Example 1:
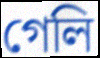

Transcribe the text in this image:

গেলি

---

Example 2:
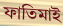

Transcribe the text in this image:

ফাতিমাই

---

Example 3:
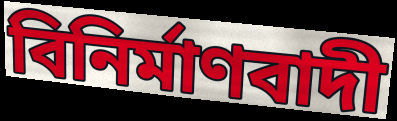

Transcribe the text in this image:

বিনিৰ্মাণবাদী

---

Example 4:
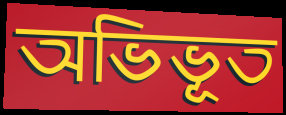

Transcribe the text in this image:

অভিভূত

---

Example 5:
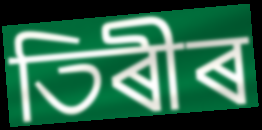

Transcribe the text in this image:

তিৰীৰ